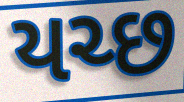
યચ્છ